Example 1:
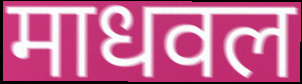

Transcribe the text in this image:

माधवल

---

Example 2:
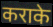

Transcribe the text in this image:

कराके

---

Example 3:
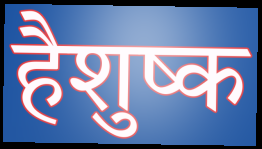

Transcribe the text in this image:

हैशुष्क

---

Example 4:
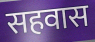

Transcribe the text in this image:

सहवास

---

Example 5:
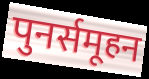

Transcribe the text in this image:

पुनर्समूहन